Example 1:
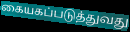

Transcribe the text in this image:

கையகப்படுத்துவது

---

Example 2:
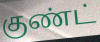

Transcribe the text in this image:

குண்ட்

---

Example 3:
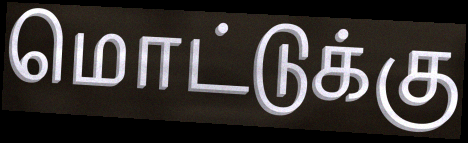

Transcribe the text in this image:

மொட்டுக்கு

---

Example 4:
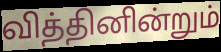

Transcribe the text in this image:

வித்தினின்றும்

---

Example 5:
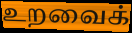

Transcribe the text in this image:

உறவைக்